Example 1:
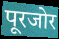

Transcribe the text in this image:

पूरजोर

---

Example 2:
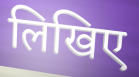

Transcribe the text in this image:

लिखिए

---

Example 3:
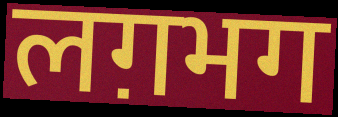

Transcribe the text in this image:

लग़भग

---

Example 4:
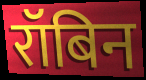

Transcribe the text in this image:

रॉबिन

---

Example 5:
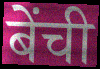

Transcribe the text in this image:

बेंची